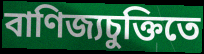
বাণিজ্যচুক্তিতে